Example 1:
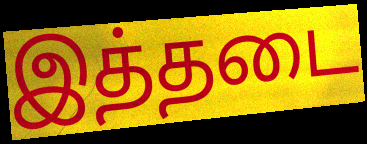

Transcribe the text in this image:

இத்தடை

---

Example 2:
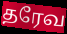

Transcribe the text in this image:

தரேவ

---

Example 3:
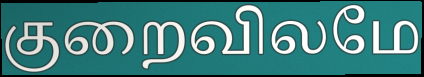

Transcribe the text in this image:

குறைவிலமே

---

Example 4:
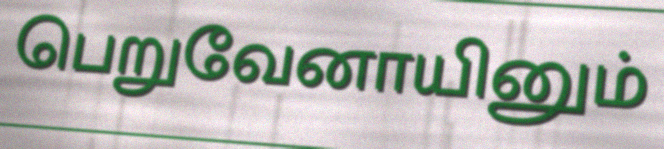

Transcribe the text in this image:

பெறுவேனாயினும்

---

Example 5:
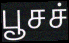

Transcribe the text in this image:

பூசச்